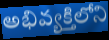
అభివ్యక్తిలోని